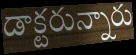
డాక్టరున్నారు